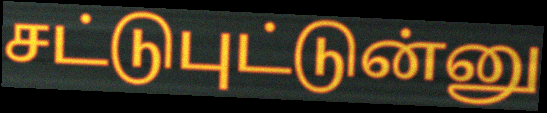
சட்டுபுட்டுன்னு